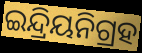
ଇନ୍ଦ୍ରିୟନିଗ୍ରହ